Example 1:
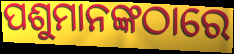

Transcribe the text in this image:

ପଶୁମାନଙ୍କଠାରେ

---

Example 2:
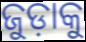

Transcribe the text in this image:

ଜୁଡ଼ାକୁ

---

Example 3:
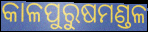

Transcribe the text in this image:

କାଳପୁରୁଷମଣ୍ଡଳ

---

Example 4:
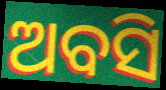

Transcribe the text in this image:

ଅବସି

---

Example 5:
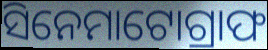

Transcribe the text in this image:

ସିନେମାଟୋଗ୍ରାଫ